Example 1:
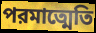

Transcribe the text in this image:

পরমাত্মেতি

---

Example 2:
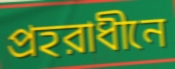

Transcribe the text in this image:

প্রহরাধীনে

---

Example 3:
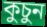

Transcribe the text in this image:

কুচুন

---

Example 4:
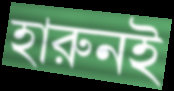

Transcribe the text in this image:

হারুনই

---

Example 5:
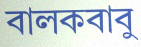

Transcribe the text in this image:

বালকবাবু